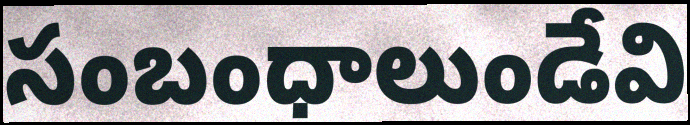
సంబంధాలుండేవి